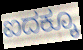
ಐದಕ್ಕೂ